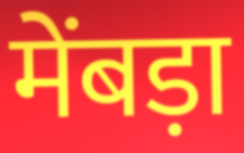
मेंबड़ा